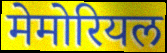
मेमोरियल